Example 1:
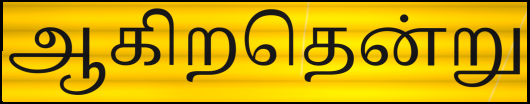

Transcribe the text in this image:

ஆகிறதென்று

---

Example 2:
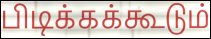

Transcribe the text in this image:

பிடிக்கக்கூடும்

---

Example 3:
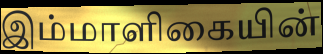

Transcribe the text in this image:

இம்மாளிகையின்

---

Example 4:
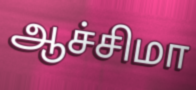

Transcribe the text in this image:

ஆச்சிமா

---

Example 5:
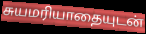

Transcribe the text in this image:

சுயமரியாதையுடன்